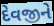
દેવજીને